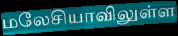
மலேசியாவிலுள்ள